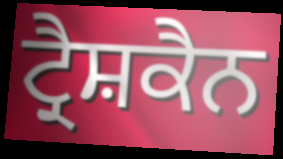
ਟ੍ਰੈਸ਼ਕੈਨ